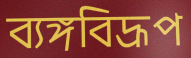
ব্যঙ্গবিদ্রূপ